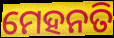
ମେହନତି